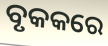
ବୃକକରେ